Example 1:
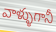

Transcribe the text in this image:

వాళ్ళుగానీ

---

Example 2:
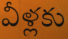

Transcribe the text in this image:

వీళ్లకు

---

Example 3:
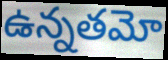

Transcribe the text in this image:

ఉన్నతమో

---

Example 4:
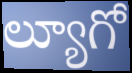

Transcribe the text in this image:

ల్యూగో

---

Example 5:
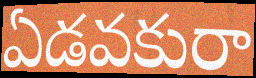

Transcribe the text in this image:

ఏడవకురా